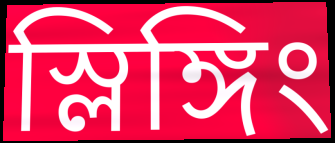
স্লিঙ্গিং